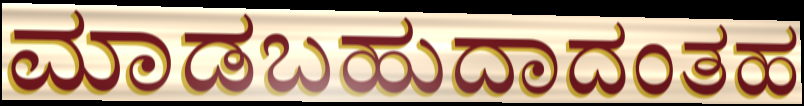
ಮಾಡಬಹುದಾದಂತಹ